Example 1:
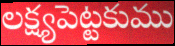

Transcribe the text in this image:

లక్ష్యపెట్టకుము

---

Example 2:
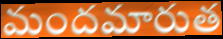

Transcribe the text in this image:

మందమారుత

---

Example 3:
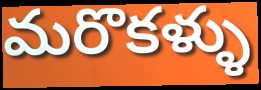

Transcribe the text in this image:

మరొకళ్ళు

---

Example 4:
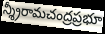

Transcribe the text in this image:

న్శ్రీరామచంద్రప్రభూ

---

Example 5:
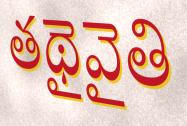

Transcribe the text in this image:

తథైవైతి